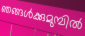
ഞങ്ങൾക്കുമുമ്പിൽ